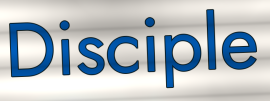
Disciple